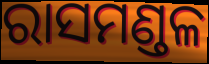
ରାସମଣ୍ଡଳ